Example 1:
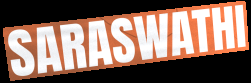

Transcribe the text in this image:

SARASWATHI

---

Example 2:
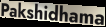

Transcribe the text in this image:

Pakshidhama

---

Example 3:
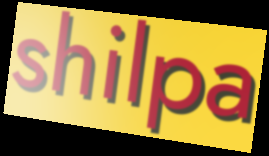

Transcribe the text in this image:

shilpa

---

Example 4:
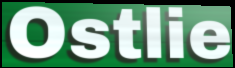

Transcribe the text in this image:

Ostlie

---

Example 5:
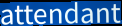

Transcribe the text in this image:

attendant